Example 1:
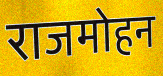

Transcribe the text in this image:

राजमोहन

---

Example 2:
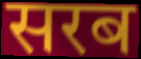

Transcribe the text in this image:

सरब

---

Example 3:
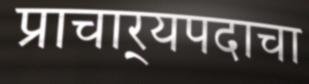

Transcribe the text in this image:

प्राचार्यपदाचा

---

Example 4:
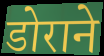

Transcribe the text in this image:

डोराने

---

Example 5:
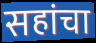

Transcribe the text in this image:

सहांचा